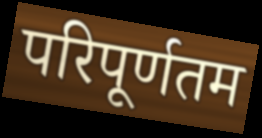
परिपूर्णतम